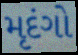
મૃદંગો